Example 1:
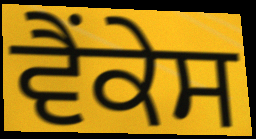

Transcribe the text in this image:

ਵੈਂਕੇਸ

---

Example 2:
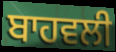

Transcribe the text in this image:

ਬਾਹਵਲੀ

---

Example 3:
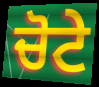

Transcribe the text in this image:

ਚੋਟੇ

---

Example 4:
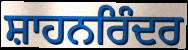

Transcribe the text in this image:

ਸ਼ਾਹਨਰਿੰਦਰ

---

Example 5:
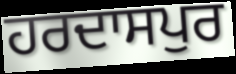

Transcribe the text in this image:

ਹਰਦਾਸਪੁਰ